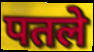
पतले